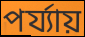
পৰ্য্যায়